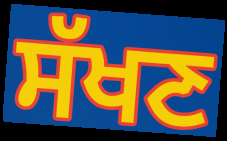
ਸੱਖਣ